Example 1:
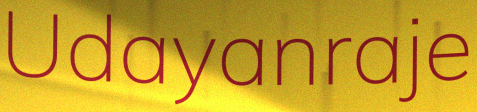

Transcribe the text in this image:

Udayanraje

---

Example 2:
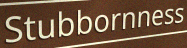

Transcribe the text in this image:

Stubbornness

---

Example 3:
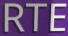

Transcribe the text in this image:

RTE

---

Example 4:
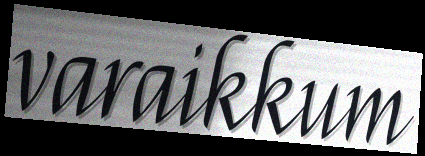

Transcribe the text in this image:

varaikkum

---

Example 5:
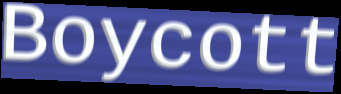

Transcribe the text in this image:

Boycott